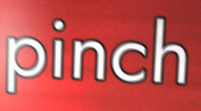
pinch